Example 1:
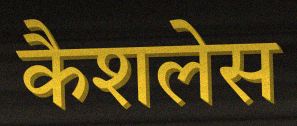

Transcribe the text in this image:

कैशलेस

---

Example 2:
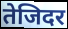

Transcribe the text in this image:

तेजिदर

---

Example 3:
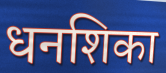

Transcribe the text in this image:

धनशिका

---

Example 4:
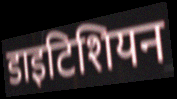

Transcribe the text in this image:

डाइटिशियन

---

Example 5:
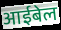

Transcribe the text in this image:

आईबेल